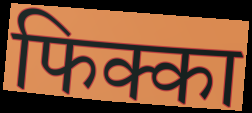
फिक्का